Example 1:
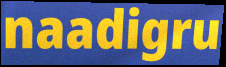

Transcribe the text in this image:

naadigru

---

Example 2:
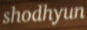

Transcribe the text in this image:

shodhyun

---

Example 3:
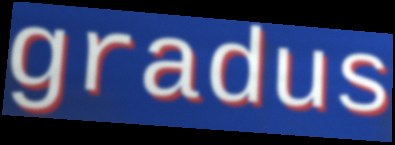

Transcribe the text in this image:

gradus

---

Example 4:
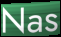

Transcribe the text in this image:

Nas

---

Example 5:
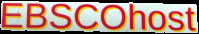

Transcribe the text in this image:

EBSCOhost